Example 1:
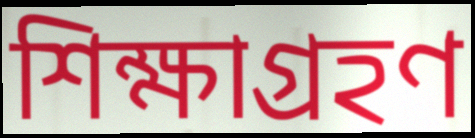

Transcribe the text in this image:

শিক্ষাগ্ৰহণ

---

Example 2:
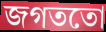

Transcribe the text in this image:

জগততো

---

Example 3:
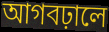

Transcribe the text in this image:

আগবঢ়ালে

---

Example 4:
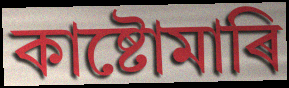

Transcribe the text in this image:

কাষ্টোমাৰি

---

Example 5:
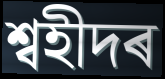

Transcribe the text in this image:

শ্বহীদৰ